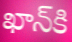
ఖాన్‌కి